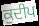
ਕੁਦੀਪ